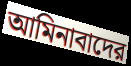
আমিনাবাদের